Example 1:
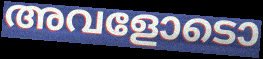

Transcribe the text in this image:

അവളോടൊ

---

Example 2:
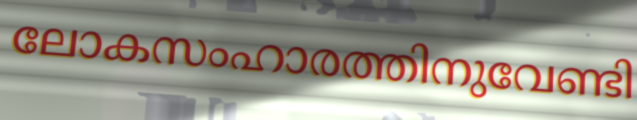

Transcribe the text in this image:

ലോകസംഹാരത്തിനുവേണ്ടി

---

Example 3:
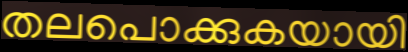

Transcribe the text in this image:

തലപൊക്കുകയായി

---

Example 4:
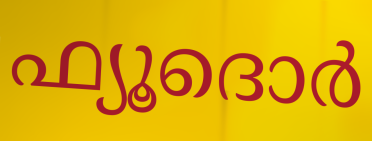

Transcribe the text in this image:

ഫ്യൂദൊർ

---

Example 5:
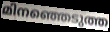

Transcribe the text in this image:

മിനഞ്ഞെടുത്ത